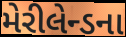
મેરીલેન્ડના